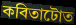
কবিতাটোত